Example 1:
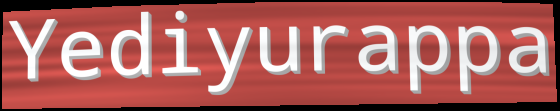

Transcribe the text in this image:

Yediyurappa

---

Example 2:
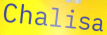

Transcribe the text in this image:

Chalisa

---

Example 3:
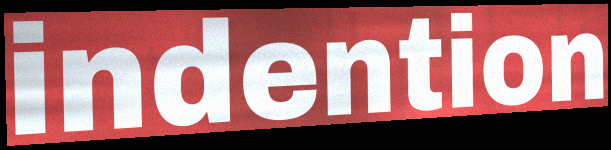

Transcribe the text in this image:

indention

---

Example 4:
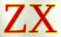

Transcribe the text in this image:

ZX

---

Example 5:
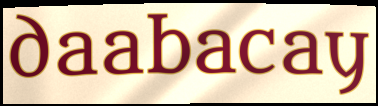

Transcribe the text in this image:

daabacay